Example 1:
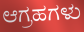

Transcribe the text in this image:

ಆಗ್ರಹಗಳು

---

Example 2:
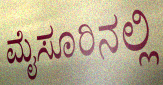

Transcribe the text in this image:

ಮೈಸೂರಿನಲ್ಲಿ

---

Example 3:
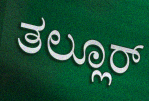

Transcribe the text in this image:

ತಲ್ಲೂರ್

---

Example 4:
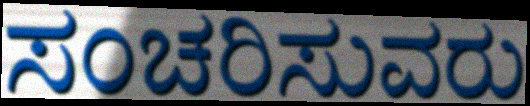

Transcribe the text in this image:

ಸಂಚರಿಸುವರು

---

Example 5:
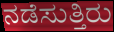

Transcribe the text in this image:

ನಡೆಸುತ್ತಿರು